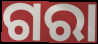
ଗରା